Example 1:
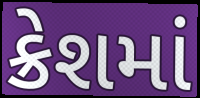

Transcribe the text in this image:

ક્રેશમાં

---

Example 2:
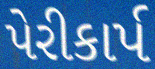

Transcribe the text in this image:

પેરીકાર્પ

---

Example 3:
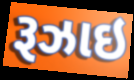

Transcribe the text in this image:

રૂઝાઇ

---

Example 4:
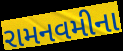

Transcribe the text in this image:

રામનવમીના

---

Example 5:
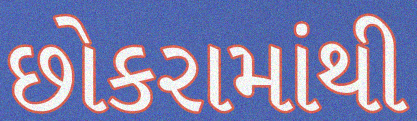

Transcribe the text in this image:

છોકરામાંથી